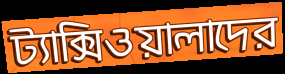
ট্যাক্সিওয়ালাদের